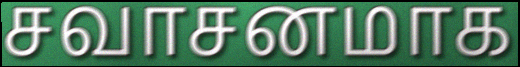
சவாசனமாக